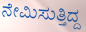
ನೇಮಿಸುತ್ತಿದ್ದ